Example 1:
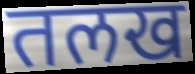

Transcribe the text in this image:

तलख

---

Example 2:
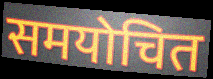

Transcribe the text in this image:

समयोचित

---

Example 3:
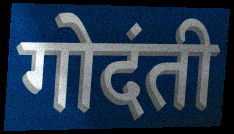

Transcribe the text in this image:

गोदंती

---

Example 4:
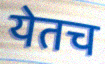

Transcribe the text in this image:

येतच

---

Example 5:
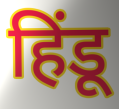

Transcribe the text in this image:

हिंडू